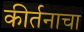
कीर्तनाचा